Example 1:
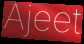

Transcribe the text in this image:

Ajeet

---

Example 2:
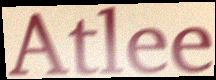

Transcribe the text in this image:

Atlee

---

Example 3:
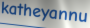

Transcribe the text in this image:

katheyannu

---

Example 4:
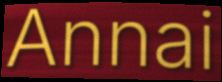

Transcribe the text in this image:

Annai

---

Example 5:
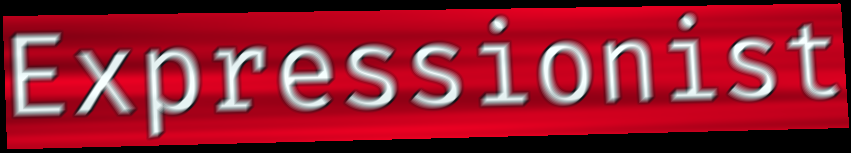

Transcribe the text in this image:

Expressionist